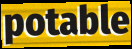
potable